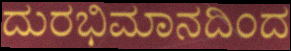
ದುರಭಿಮಾನದಿಂದ